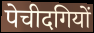
पेचीदगियों